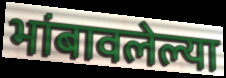
भांबावलेल्या